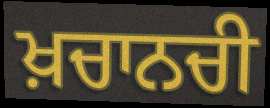
ਖ਼ਚਾਨਚੀ